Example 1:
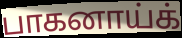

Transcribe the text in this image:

பாகனாய்க்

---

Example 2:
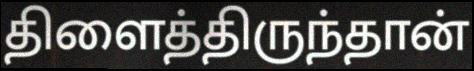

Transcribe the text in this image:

திளைத்திருந்தான்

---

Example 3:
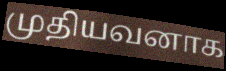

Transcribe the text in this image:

முதியவனாக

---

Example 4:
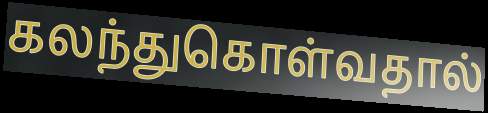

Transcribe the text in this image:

கலந்துகொள்வதால்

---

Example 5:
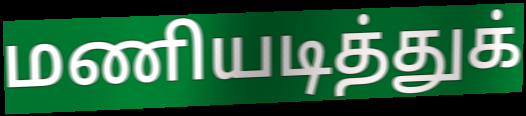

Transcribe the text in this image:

மணியடித்துக்